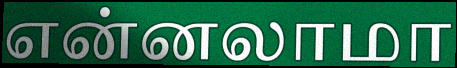
என்னலாமா